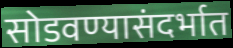
सोडवण्यासंदर्भात